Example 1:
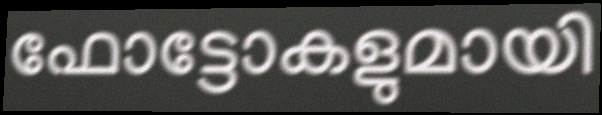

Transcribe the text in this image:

ഫോട്ടോകളുമായി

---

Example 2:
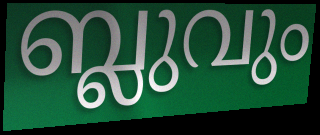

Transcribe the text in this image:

ബ്ലുവും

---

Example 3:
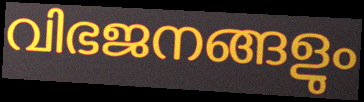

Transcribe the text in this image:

വിഭജനങ്ങളും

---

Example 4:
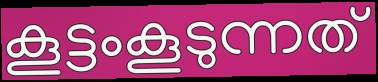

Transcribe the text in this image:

കൂട്ടംകൂടുന്നത്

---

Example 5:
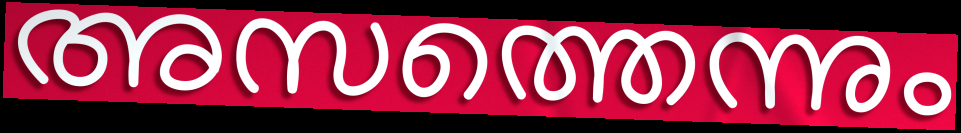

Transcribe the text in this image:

അസത്തെന്നും